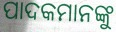
ପାଦକମାନଙ୍କୁ